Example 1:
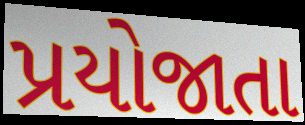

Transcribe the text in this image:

પ્રયોજાતા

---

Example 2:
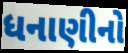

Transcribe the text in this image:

ધનાણીનો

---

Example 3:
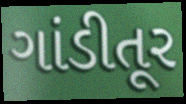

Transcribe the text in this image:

ગાંડીતૂર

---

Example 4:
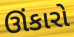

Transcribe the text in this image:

ઊંકારો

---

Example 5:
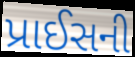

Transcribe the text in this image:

પ્રાઈસની